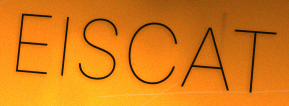
EISCAT